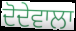
ਦੋਦੇਵਾਲਾ